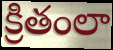
క్రితంలా